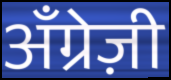
अँग्रेज़ी